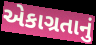
એકાગ્રતાનું